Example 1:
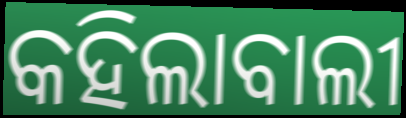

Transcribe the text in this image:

କହିଲାବାଲୀ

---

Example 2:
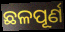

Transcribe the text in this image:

ଛଳପୂର୍ଣ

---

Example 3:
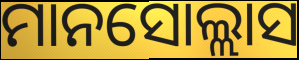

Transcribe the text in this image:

ମାନସୋଲ୍ଲାସ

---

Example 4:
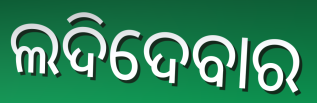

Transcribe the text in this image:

ଲଦିଦେବାର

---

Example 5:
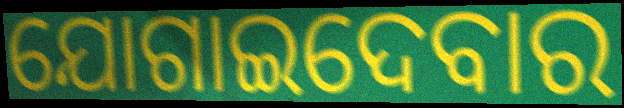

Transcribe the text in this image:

ଯୋଗାଇଦେବାର